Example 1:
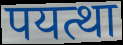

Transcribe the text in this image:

पयत्था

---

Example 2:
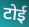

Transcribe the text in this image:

टोई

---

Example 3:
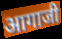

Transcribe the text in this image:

आगाजी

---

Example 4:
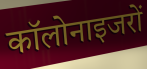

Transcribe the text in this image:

कॉलोनाइजरों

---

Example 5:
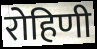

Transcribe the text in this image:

रोहिणी